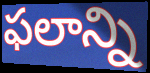
ఫలాన్ని